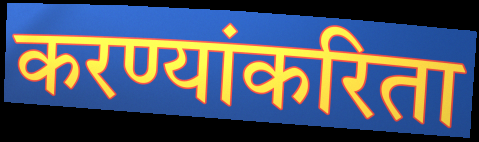
करण्यांकरिता